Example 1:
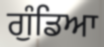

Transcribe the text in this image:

ਗੁੰਡਿਆ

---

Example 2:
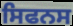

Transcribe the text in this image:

ਸਿਫਨਸ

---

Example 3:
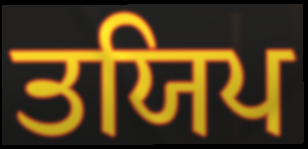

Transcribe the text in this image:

ਤਯਿਪ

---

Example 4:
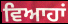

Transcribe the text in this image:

ਵਿਆਹਾਂ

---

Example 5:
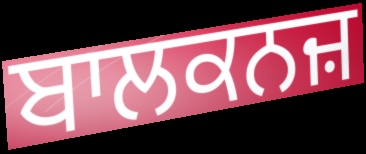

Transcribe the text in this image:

ਬਾਲਕਨਜ਼